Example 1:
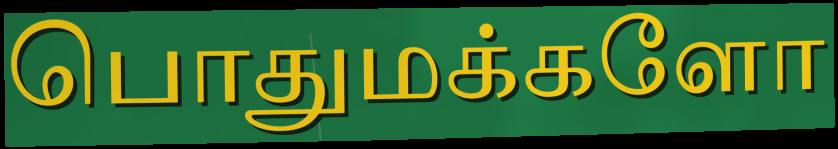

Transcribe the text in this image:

பொதுமக்களோ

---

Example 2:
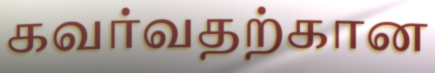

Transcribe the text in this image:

கவர்வதற்கான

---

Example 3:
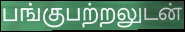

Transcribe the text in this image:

பங்குபற்றலுடன்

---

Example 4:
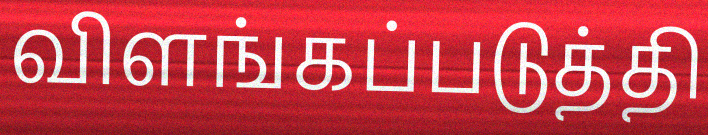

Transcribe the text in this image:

விளங்கப்படுத்தி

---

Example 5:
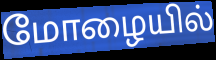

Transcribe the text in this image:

மோழையில்